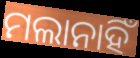
ମଲାନାହିଁ